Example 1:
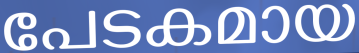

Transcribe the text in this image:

പേടകമായ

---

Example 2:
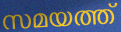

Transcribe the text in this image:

സമയത്ത്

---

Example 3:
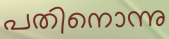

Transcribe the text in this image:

പതിനൊന്നു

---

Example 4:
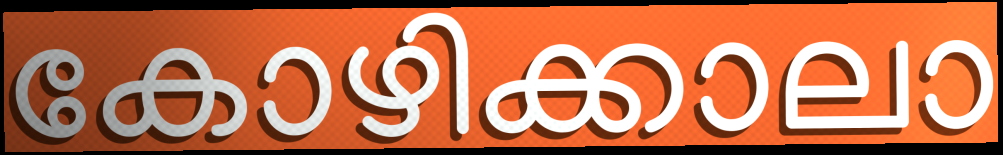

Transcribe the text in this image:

കോഴിക്കാലാ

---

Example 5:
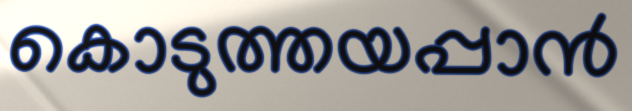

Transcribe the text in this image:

കൊടുത്തയപ്പാൻ